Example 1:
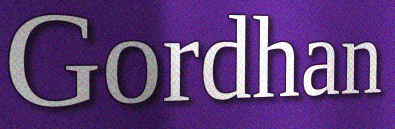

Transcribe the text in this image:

Gordhan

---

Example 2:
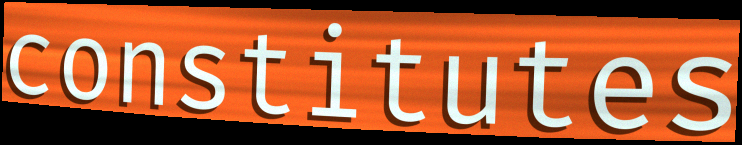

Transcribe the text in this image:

constitutes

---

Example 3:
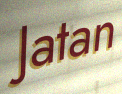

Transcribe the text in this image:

Jatan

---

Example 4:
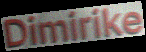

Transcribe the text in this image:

Dimirike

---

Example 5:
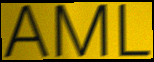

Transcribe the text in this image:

AML